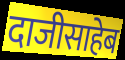
दाजीसाहेब